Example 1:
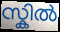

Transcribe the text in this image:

സ്കിൽ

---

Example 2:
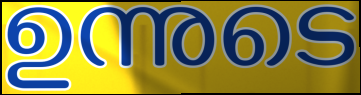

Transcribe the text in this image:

ഉന്നുടെ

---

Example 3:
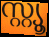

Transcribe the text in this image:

സ്റ്റ്യൂ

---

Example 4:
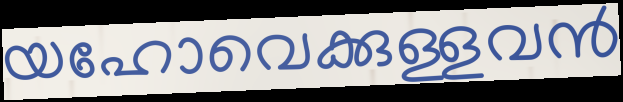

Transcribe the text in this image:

യഹോവെക്കുള്ളവൻ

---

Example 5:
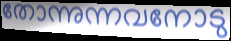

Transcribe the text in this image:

തോന്നുന്നവനോടു